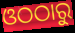
ଓଠଠାରୁ